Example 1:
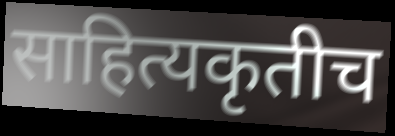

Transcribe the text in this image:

साहित्यकृतीच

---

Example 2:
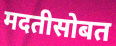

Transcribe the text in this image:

मदतीसोबत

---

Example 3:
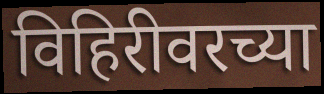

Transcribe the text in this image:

विहिरीवरच्या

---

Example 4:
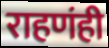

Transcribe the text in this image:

राहणंही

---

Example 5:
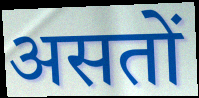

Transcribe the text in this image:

असतों